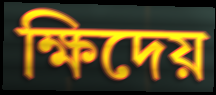
ক্ষিদেয়